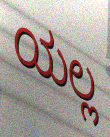
ಯಲ್ಲ